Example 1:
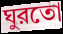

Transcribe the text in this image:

ঘুরতো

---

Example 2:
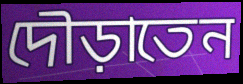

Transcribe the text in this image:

দৌড়াতেন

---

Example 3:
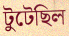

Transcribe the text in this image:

টুটেছিল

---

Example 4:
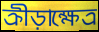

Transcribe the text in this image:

ক্রীড়াক্ষেত্র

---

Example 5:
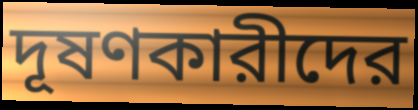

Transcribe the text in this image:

দূষণকারীদের